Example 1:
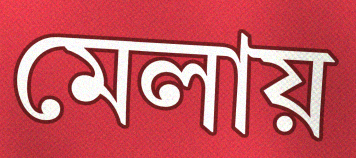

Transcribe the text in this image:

মেলায়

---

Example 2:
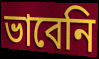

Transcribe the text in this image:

ভাবেনি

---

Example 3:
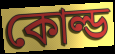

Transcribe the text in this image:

কোল্ড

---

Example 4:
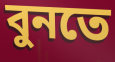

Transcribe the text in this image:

বুনতে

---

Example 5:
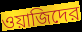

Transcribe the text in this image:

ওয়াজিদের